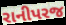
રાનીપરજ